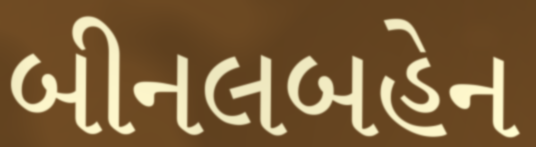
બીનલબહેન